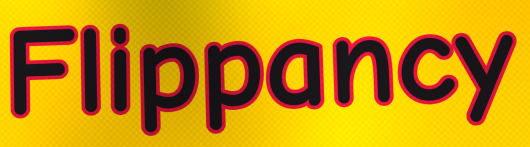
Flippancy